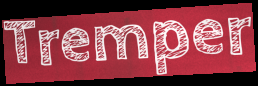
Tremper